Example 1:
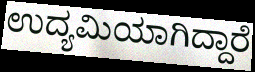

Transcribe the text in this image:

ಉದ್ಯಮಿಯಾಗಿದ್ದಾರೆ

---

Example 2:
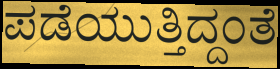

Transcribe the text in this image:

ಪಡೆಯುತ್ತಿದ್ದಂತೆ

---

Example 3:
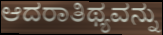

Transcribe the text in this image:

ಆದರಾತಿಥ್ಯವನ್ನು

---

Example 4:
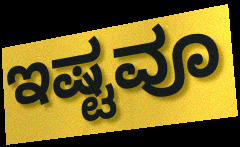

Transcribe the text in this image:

ಇಷ್ಟವೂ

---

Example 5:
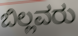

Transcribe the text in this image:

ಬಿಲ್ಲವರು